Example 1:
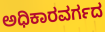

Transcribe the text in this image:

ಅಧಿಕಾರವರ್ಗದ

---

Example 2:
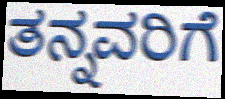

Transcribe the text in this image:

ತನ್ನವರಿಗೆ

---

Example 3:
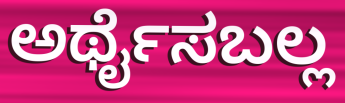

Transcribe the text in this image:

ಅರ್ಥೈಸಬಲ್ಲ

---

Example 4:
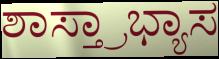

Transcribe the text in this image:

ಶಾಸ್ತ್ರಾಭ್ಯಾಸ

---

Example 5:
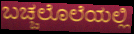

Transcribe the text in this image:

ಬಚ್ಚಲೊಲೆಯಲ್ಲಿ